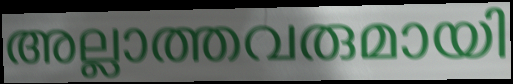
അല്ലാത്തവരുമായി